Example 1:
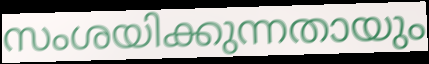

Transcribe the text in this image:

സംശയിക്കുന്നതായും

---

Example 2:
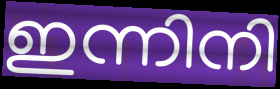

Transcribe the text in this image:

ഇന്നിനി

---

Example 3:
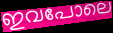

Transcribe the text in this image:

ഇവപോലെ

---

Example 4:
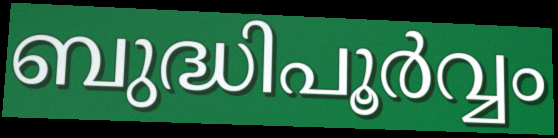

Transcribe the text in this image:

ബുദ്ധിപൂർവ്വം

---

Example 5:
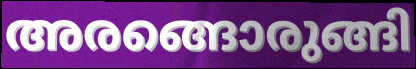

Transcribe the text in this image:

അരങ്ങൊരുങ്ങി